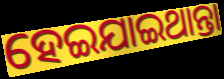
ହେଇଯାଇଥାନ୍ତା